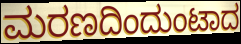
ಮರಣದಿಂದುಂಟಾದ